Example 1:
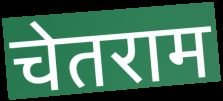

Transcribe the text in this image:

चेतराम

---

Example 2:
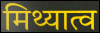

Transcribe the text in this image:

मिथ्‍यात्‍व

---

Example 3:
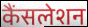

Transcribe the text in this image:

कैंसलेशन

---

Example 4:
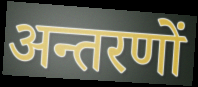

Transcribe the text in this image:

अन्तरणों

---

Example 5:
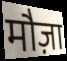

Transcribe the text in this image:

मौज़ा